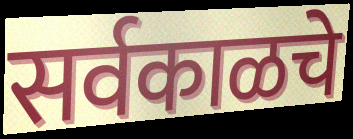
सर्वकाळचे